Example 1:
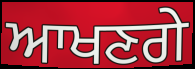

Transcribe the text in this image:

ਆਖਣਗੇ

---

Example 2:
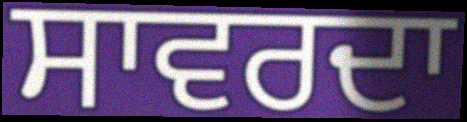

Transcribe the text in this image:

ਸਾਵਰਦਾ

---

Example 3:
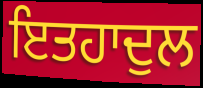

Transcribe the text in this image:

ਇਤਹਾਦੁਲ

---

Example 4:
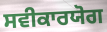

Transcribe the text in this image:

ਸਵੀਕਾਰਯੋਗ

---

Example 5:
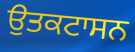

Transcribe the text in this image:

ਉਤਕਟਾਸਨ